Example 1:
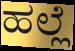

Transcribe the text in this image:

ಹಲ್ಲೆ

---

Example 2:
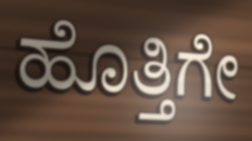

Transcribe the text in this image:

ಹೊತ್ತಿಗೇ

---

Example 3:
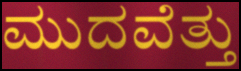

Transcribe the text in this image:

ಮುದವೆತ್ತು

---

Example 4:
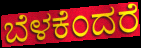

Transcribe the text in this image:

ಬೆಳಕೆಂದರೆ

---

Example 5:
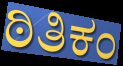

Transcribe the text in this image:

ಠಿತಿಕಂ